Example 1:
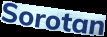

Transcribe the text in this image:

Sorotan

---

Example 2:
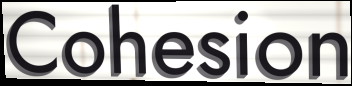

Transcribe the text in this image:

Cohesion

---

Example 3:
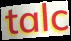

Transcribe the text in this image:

talc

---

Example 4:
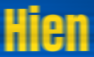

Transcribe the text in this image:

Hien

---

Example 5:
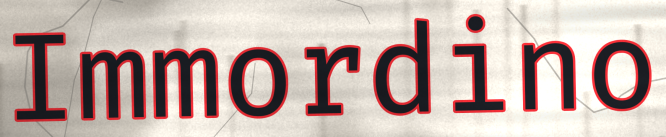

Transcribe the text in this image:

Immordino